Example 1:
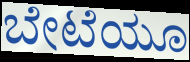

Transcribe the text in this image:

ಬೇಟೆಯೂ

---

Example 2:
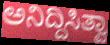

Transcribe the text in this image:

ಅನಿದ್ದಿಸಿತ್ವಾ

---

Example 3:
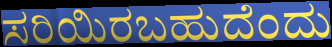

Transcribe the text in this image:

ಸರಿಯಿರಬಹುದೆಂದು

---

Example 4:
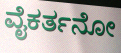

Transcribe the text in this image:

ವೈಕರ್ತನೋ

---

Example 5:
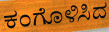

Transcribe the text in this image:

ಕಂಗೊಳಿಸಿದ